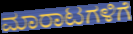
ಮಾರಾಟಗಳಿಗೆ